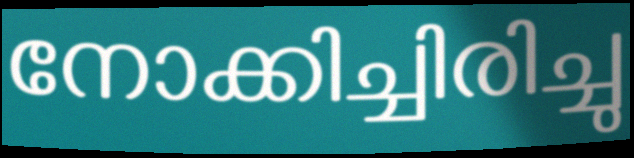
നോക്കിച്ചിരിച്ചു